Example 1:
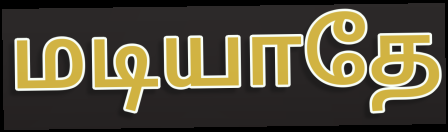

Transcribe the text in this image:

மடியாதே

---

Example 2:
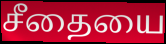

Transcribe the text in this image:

சீதையை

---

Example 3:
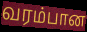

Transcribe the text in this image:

வரம்பான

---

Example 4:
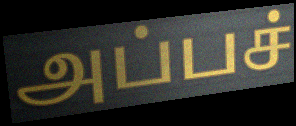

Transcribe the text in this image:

அப்பச்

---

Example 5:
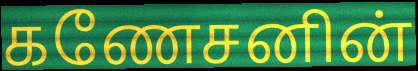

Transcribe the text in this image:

கணேசனின்